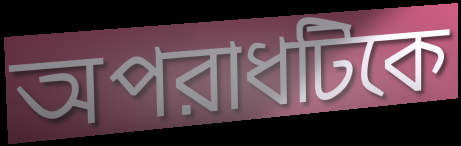
অপরাধটিকে